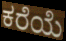
ಕರೆಯೆ